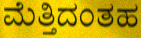
ಮೆತ್ತಿದಂತಹ